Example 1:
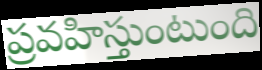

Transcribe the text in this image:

ప్రవహిస్తుంటుంది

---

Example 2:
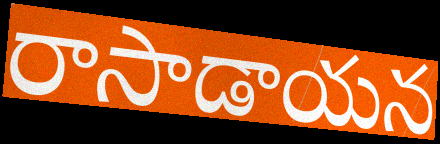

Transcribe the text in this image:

రాసాడాయన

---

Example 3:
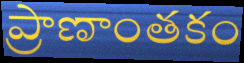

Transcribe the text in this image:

ప్రాణాంతకం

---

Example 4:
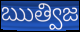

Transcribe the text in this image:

ఋత్విజ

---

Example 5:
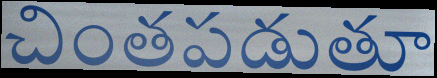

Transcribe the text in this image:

చింతపడుతూ